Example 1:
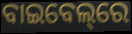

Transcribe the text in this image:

ବାଇବେଲ୍‌ରେ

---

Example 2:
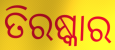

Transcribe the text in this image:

ତିରଷ୍କାର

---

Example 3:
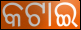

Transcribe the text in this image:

କଟାଇ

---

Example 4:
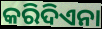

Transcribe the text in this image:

କରିଦିଏନା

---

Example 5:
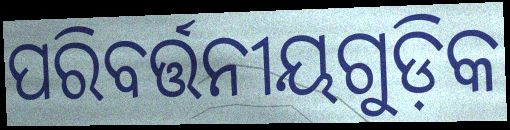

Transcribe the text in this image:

ପରିବର୍ତ୍ତନୀୟଗୁଡ଼ିକ